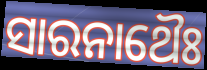
ସାରନାଥୈଃ